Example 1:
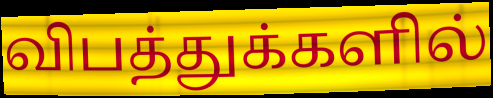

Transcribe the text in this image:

விபத்துக்களில்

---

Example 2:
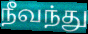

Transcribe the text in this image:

நீவந்து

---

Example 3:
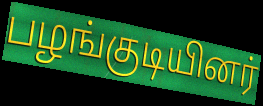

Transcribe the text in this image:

பழங்குடியினர்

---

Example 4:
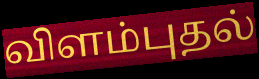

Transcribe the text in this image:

விளம்புதல்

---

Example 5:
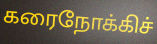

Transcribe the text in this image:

கரைநோக்கிச்